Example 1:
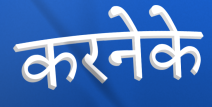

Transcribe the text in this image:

करनेके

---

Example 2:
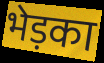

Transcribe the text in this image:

भेड़का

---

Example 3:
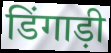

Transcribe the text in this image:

डिंगाड़ी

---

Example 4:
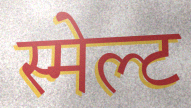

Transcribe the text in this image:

स्मेल्ट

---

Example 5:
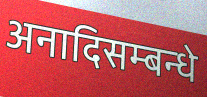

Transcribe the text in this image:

अनादिसम्बन्धे